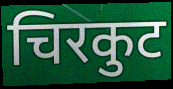
चिरकुट